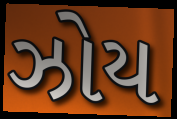
ઝોય